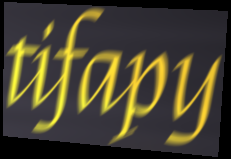
tifapy